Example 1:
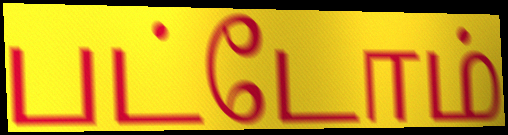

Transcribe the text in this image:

பட்டோம்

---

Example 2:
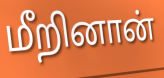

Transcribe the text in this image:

மீறினான்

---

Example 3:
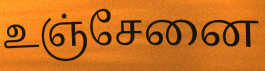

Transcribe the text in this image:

உஞ்சேனை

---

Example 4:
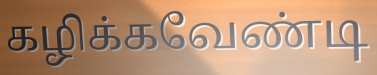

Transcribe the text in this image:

கழிக்கவேண்டி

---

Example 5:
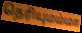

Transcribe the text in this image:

தெரியுமம்மா